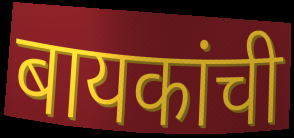
बायकांची